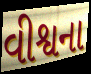
વીશ્વના